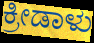
ಕ್ರೀಡಾಳು